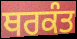
ਥਰਕੰਤ